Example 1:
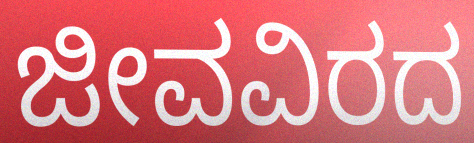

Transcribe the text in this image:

ಜೀವವಿರದ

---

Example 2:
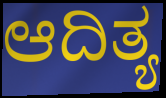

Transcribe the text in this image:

ಆದಿತ್ಯ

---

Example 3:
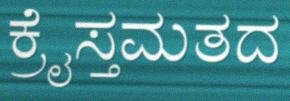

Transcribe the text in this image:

ಕ್ರೈಸ್ತಮತದ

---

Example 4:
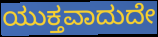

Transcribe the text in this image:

ಯುಕ್ತವಾದುದೇ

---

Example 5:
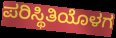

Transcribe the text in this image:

ಪರಿಸ್ಥಿತಿಯೊಳಗ